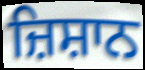
ਜ਼ਿਸ਼ਾਨ